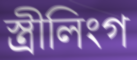
স্ত্ৰীলিংগ